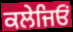
ਕਲੇਜਿਓਂ